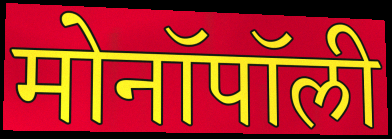
मोनॉपॉली